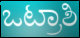
ಒಟ್ರಾಶಿ